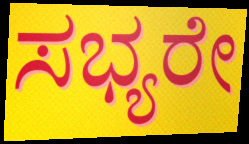
ಸಭ್ಯರೇ